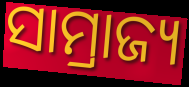
ସାମ୍ରାଜ୍ଯ